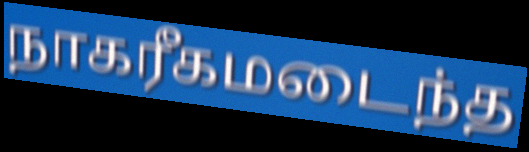
நாகரீகமடைந்த